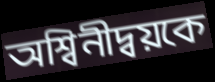
অশ্বিনীদ্বয়কে